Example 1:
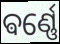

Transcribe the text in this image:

ଵର୍ଣ୍ଣେ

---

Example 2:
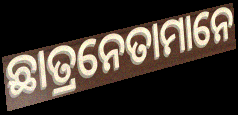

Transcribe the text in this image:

ଛାତ୍ରନେତାମାନେ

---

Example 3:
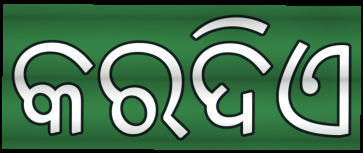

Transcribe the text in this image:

କରଦିଏ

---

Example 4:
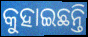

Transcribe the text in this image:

କୁହାଇଛନ୍ତି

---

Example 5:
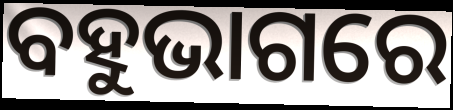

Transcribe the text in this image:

ବହୁଭାଗରେ